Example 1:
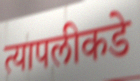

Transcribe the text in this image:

त्यापलीकडे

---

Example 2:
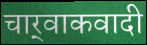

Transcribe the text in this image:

चार्वाकवादी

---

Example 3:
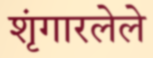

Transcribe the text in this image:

शृंगारलेले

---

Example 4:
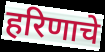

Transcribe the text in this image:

हरिणाचे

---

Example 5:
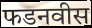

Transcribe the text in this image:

फडनवीस